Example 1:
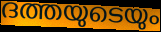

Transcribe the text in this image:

ദത്തയുടെയും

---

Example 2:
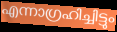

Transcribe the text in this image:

എന്നാഗ്രഹിച്ചിട്ടും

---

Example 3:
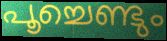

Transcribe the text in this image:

പൂച്ചെണ്ടും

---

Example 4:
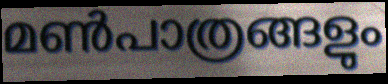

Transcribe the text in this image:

മൺപാത്രങ്ങളും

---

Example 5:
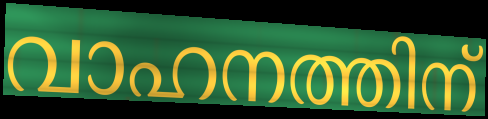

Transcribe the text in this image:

വാഹനത്തിന്